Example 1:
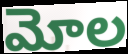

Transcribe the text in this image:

మోల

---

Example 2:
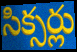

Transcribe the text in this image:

సిక్సర్లు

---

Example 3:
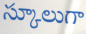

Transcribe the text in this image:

స్కూలుగా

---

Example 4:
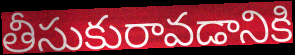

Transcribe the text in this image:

తీసుకురావడానికి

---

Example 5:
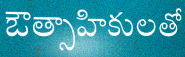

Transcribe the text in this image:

ఔత్సాహికులతో